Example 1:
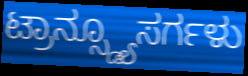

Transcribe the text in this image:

ಟ್ರಾನ್ಸ್ಡ್ಯೂಸರ್ಗಳು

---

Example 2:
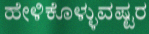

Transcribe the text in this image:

ಹೇಳಿಕೊಳ್ಳುವಷ್ಟರ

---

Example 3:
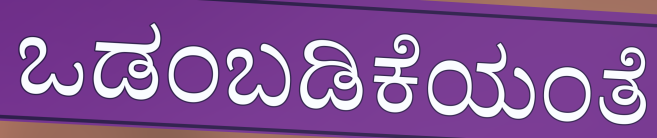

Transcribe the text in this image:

ಒಡಂಬಡಿಕೆಯಂತೆ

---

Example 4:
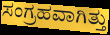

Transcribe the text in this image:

ಸಂಗ್ರಹವಾಗಿತ್ತು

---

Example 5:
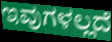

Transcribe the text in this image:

ಇವುಗಳಲ್ಲದೆ